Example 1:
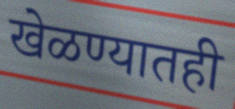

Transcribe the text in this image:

खेळण्यातही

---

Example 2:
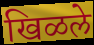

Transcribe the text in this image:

खिळले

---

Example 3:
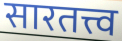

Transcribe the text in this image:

सारतत्त्व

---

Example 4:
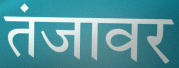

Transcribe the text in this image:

तंजावर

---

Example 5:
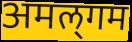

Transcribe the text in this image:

अमल्गम